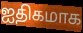
ஐதிகமாக